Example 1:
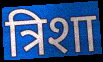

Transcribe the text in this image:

त्रिशा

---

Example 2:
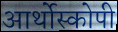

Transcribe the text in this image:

आर्थोस्कोपी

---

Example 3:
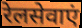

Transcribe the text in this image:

रेलसेवाएं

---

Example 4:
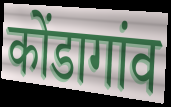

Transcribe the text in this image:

कोंडागांव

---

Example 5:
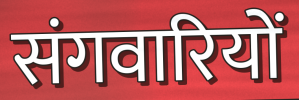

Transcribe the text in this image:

संगवारियों